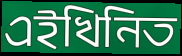
এইখিনিত